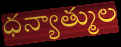
ధన్యాత్ముల